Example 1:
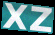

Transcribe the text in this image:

xz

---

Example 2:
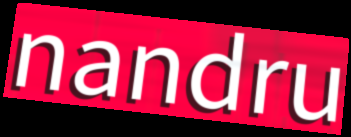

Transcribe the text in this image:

nandru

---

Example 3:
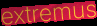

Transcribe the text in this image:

extremus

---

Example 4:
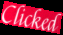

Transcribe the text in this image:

Clicked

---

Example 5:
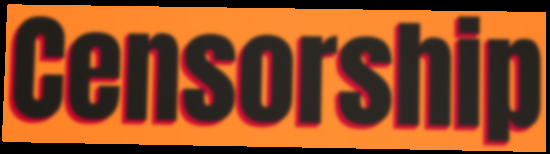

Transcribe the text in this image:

Censorship